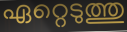
ഏറ്റെടുത്തു